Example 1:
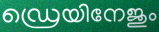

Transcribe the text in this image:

ഡ്രെയിനേജും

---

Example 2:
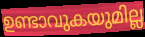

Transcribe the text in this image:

ഉണ്ടാവുകയുമില്ല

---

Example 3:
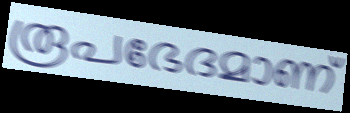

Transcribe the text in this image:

രൂപഭേദമാണ്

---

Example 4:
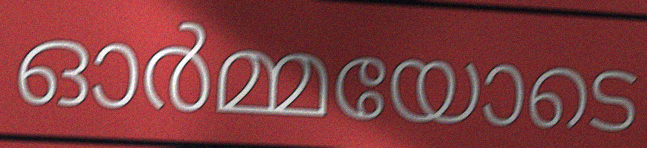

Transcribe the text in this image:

ഓർമ്മയോടെ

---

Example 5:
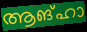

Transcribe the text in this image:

ആങ്ഹാ